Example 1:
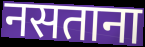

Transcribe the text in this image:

नसताना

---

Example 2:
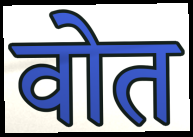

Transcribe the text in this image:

वोत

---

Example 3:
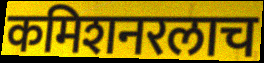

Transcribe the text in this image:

कमिशनरलाच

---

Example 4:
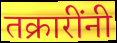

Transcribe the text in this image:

तक्रारींनी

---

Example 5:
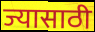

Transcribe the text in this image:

ज्यासाठी